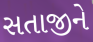
સતાજીને